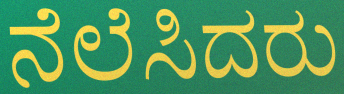
ನೆಲೆಸಿದರು